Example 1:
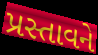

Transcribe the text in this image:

પ્રસ્તાવને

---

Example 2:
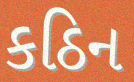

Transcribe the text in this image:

કઠિન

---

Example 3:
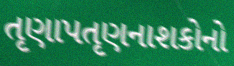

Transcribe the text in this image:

તૃણાપતૃણનાશકોનો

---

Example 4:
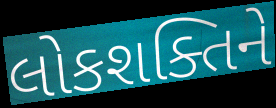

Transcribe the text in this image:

લોકશક્તિને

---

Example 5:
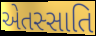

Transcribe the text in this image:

એતસ્સાતિ